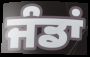
ਜੰਡਾਂ